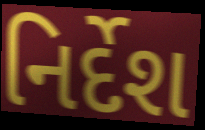
નિર્દેશ